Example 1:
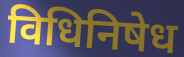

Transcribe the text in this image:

विधिनिषेध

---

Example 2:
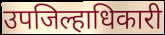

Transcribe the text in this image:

उपजिल्हाधिकारी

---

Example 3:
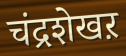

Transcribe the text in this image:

चंद्रशेखऱ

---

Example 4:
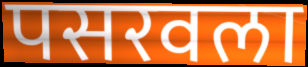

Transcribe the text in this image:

पसरवला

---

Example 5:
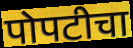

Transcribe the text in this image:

पोपटीचा